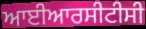
ਆਈਆਰਸੀਟੀਸੀ